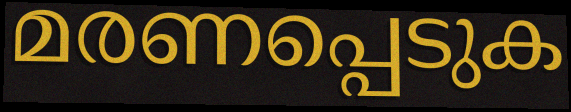
മരണപ്പെടുക